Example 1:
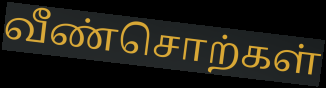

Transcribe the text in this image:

வீண்சொற்கள்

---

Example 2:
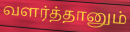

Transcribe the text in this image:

வளர்த்தானும்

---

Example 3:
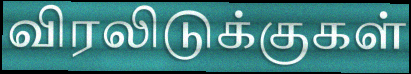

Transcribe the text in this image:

விரலிடுக்குகள்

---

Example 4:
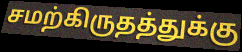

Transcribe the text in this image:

சமற்கிருதத்துக்கு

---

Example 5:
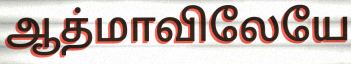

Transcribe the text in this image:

ஆத்மாவிலேயே